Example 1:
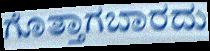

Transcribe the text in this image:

ಗೊತ್ತಾಗಬಾರದು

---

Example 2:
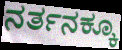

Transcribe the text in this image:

ನರ್ತನಕ್ಕೂ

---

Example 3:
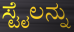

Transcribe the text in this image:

ಸ್ಟೈಲನ್ನು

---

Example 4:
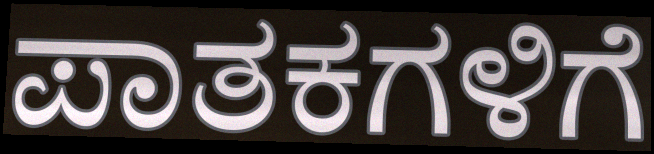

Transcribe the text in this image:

ಪಾತಕಗಳಿಗೆ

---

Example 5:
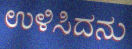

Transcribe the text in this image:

ಉಳಿಸಿದನು